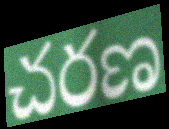
చరణ